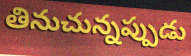
తినుచున్నప్పుడు